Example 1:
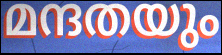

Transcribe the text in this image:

മന്ദതയും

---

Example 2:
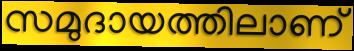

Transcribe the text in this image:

സമുദായത്തിലാണ്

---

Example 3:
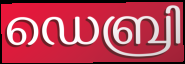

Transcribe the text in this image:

ഡെബ്രി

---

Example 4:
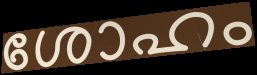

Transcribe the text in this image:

ശോഹം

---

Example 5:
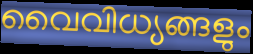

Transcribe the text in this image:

വൈവിധ്യങ്ങളും